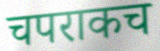
चपराकच